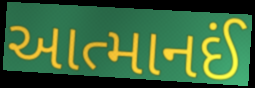
આત્માનઈં